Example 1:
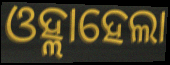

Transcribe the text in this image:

ଓହ୍ଲାହେଲା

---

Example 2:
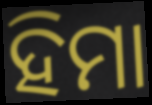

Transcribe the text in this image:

ହିମା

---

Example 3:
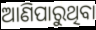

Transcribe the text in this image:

ଆଣିପାରୁଥିବା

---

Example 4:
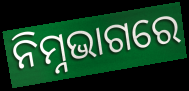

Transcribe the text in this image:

ନିମ୍ନଭାଗରେ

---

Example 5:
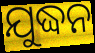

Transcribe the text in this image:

ଯୁଦ୍ଧନ